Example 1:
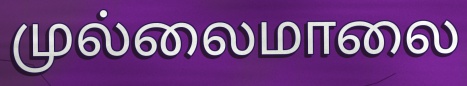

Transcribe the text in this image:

முல்லைமாலை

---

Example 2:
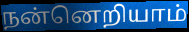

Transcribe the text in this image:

நன்னெறியாம்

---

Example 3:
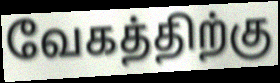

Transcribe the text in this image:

வேகத்திற்கு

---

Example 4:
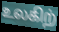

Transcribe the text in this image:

உலகிற்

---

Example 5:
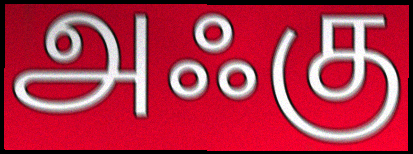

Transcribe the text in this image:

அஃகு